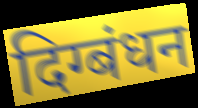
दिग्बंधन